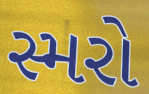
સ્મરો